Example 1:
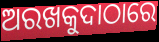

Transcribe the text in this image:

ଅରଖକୁଦାଠାରେ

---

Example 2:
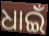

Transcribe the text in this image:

ଧାଇଁ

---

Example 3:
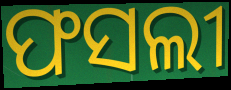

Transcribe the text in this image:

ଫସଲୀ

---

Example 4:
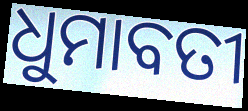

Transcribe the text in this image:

ଧୁମାବତୀ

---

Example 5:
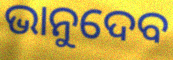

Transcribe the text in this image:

ଭାନୁଦେବ